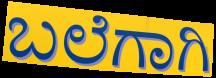
ಬಲೆಗಾಗಿ